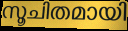
സൂചിതമായി